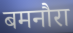
बमनौरा